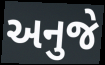
અનુજે